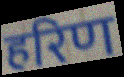
हरिण